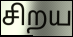
சிறய